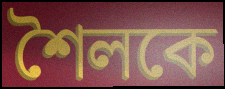
শৈলকে